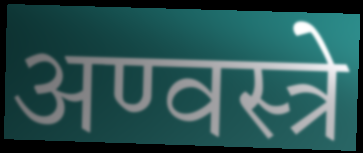
अण्वस्त्रे